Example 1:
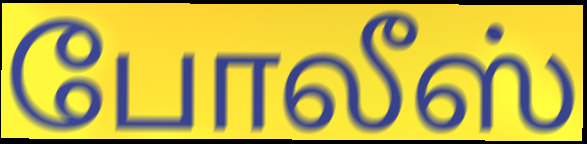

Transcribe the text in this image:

போலீஸ்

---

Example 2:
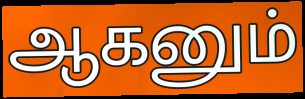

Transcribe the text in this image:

ஆகனும்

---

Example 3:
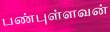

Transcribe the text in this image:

பண்புள்ளவன்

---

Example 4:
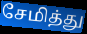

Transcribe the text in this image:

சேமித்து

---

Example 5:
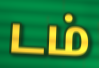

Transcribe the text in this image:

டம்